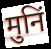
मुनिं